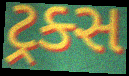
ટ્રક્સ